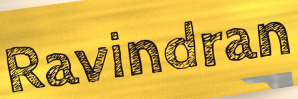
Ravindran